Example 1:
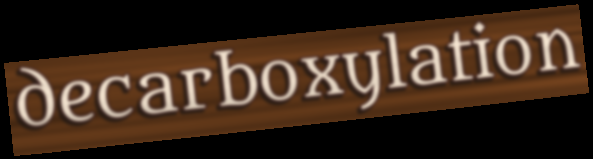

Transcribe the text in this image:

decarboxylation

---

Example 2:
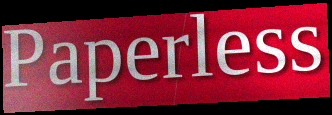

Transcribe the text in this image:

Paperless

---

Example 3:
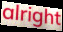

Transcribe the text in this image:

alright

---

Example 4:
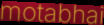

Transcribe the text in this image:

motabhai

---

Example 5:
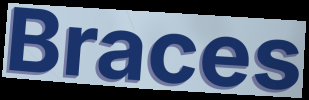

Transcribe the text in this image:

Braces